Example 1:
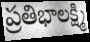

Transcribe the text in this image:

ప్రతిభాలక్ష్మి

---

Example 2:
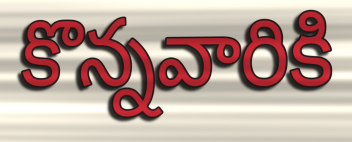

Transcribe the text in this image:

కొన్నవారికి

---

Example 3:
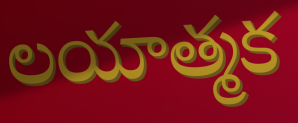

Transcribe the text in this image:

లయాత్మక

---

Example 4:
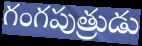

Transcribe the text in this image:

గంగపుత్రుడు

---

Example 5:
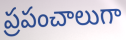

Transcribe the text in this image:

ప్రపంచాలుగా